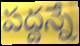
పద్దన్నే